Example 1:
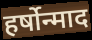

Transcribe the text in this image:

हर्षोन्माद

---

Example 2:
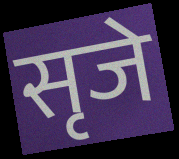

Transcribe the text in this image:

सृजे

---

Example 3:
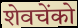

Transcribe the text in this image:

शेवचेंको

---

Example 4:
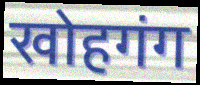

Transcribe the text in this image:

खोहगंग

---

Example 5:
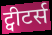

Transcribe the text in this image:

ट्वीटर्स